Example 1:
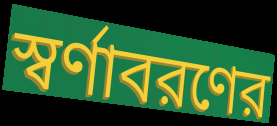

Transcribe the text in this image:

স্বর্ণাবরণের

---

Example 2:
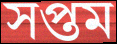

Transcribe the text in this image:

সপ্তম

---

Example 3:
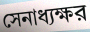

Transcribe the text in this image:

সেনাধ্যক্ষর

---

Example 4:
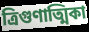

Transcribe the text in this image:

ত্রিগুণাত্মিকা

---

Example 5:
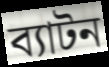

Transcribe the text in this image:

ব্যাটন